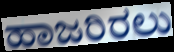
ಹಾಜರಿರಲು